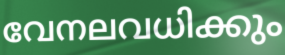
വേനലവധിക്കും